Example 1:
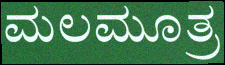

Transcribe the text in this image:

ಮಲಮೂತ್ರ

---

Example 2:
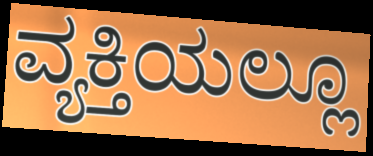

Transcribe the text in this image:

ವ್ಯಕ್ತಿಯಲ್ಲೂ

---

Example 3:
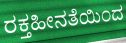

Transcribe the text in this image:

ರಕ್ತಹೀನತೆಯಿಂದ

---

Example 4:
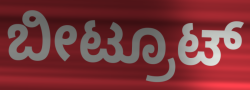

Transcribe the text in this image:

ಬೀಟ್ರೂಟ್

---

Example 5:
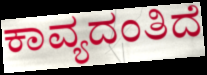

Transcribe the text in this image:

ಕಾವ್ಯದಂತಿದೆ